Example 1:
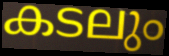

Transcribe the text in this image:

കടലും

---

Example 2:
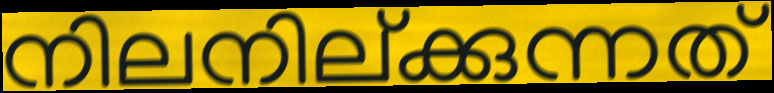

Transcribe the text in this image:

നിലനില്ക്കുന്നത്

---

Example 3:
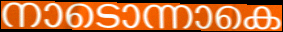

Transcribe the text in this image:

നാടൊന്നാകെ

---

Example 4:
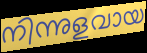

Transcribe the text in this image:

നിന്നുളവായ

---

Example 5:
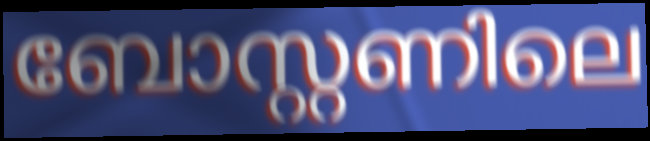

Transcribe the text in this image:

ബോസ്റ്റണിലെ